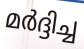
മർദ്ദിച്ച